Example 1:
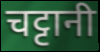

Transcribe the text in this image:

चट्टानी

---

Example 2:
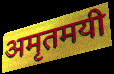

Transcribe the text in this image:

अमृतमयी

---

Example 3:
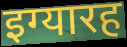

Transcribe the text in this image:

इग्यारह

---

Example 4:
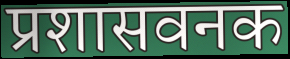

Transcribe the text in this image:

प्रशासवनक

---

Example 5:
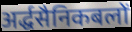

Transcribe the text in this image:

अर्द्धसैनिकबलों